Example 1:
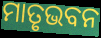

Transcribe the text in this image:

ମାତୃଭବନ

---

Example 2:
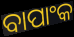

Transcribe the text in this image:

ବାପାଂକ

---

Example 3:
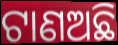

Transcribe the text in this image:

ଟାଣଅଛି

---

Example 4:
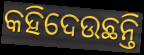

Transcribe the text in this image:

କହିଦେଉଛନ୍ତି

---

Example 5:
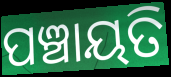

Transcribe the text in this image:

ପଞ୍ଚାୟତି